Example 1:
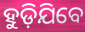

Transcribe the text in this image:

ହୁଡ଼ିଯିବେ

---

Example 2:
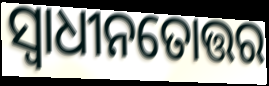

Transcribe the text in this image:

ସ୍ୱାଧୀନତୋତ୍ତର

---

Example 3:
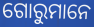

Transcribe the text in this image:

ଗୋରୁମାନେ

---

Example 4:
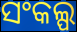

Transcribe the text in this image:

ସଂକଲ୍ପ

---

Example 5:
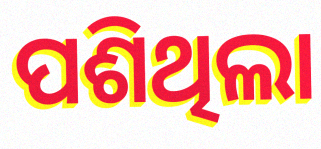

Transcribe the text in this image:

ପଶିଥିଲା